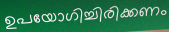
ഉപയോഗിച്ചിരിക്കണം